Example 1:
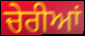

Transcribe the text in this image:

ਚੇਰੀਆਂ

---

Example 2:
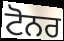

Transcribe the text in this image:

ਟੋਨਰ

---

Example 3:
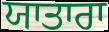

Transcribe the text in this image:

ਯਾਤਾਰਾ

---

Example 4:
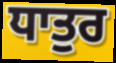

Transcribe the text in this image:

ਧਾਤੁਰ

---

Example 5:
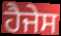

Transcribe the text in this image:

ਹੈਜੇਸ